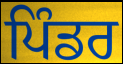
ਪਿੰਡਰ